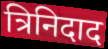
त्रिनिदाद